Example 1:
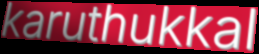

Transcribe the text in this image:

karuthukkal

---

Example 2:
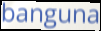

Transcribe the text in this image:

banguna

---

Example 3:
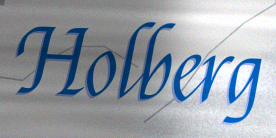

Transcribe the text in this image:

Holberg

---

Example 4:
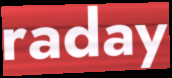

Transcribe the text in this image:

raday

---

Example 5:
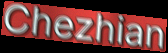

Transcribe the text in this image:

Chezhian